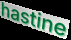
hastine